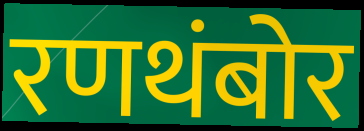
रणथंबोर